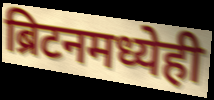
ब्रिटनमध्येही